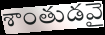
శాంతుడవై